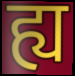
ह्य